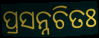
ପ୍ରସନ୍ନଚିତଃ